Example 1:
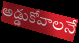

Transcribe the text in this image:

అడ్డుకోవాలనే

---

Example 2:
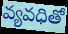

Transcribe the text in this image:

వ్యవధితో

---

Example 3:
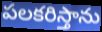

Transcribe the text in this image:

పలకరిస్తాను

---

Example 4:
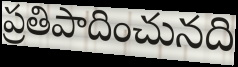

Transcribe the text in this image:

ప్రతిపాదించునది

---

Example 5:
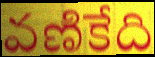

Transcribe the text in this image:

వణికేది